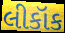
લીકૉક